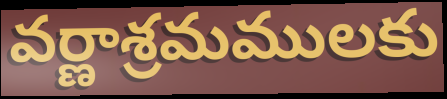
వర్ణాశ్రమములకు